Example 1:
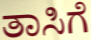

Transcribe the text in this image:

ತಾಸಿಗೆ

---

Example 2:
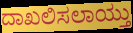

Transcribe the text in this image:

ದಾಖಲಿಸಲಾಯ್ತು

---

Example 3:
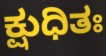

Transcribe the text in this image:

ಕ್ಷುಧಿತಃ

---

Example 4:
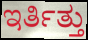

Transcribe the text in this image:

ಇರ್ತಿತ್ತು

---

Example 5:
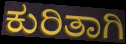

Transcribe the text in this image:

ಕುರಿತಾಗಿ